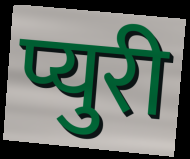
प्युरी